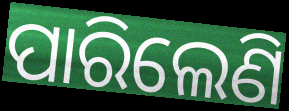
ପାରିଲେଣି